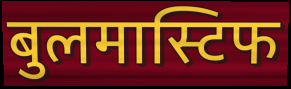
बुलमास्टिफ